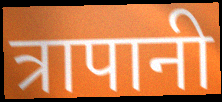
त्रापानी